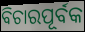
ବିଚାରପୂର୍ବକ